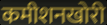
कमीशनखोरी